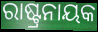
ରାଷ୍ଟ୍ରନାୟକ